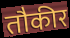
तौकीर